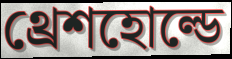
থ্রেশহোল্ডে